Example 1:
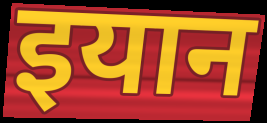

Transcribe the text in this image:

इयान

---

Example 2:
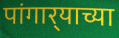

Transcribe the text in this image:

पांगार्‍याच्या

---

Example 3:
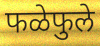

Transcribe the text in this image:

फळेफुले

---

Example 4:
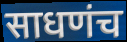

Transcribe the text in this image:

साधणंच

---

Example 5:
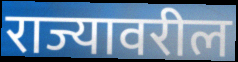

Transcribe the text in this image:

राज्यावरील